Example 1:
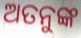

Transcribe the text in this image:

ଅତନୁଙ୍କ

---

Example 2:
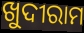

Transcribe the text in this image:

ଖୁଦୀରାମ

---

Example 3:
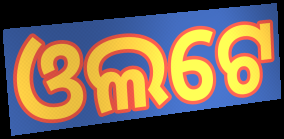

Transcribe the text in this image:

ଓଲଟେ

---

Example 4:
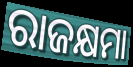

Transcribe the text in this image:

ରାଜକ୍ଷମା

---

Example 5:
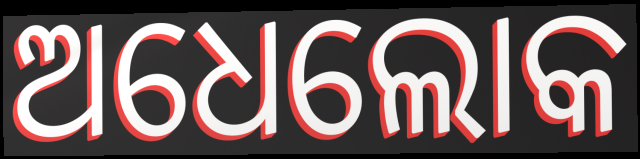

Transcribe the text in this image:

ଅଧେଲୋକ